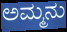
ಅಮ್ಮನು